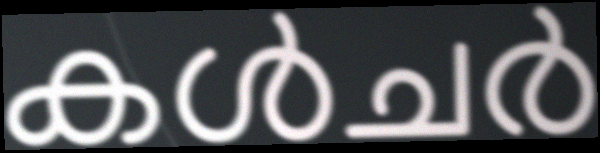
കൾചർ